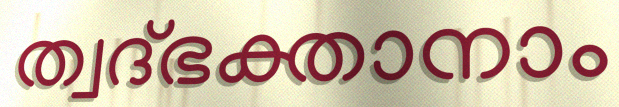
ത്വദ്ഭക്താനാം